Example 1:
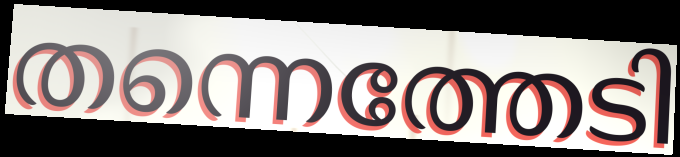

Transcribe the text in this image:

തന്നെത്തേടി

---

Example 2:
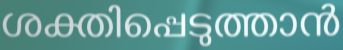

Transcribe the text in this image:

ശക്തിപ്പെടുത്താൻ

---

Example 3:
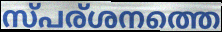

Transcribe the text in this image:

സ്പര്ശനത്തെ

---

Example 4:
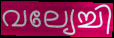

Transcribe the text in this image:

വല്യേച്ചി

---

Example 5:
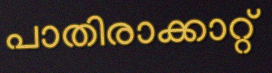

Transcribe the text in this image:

പാതിരാക്കാറ്റ്